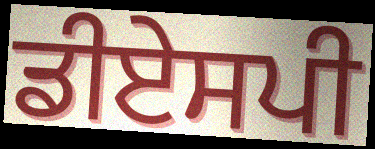
ਡੀਏਸਪੀ